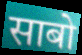
साबो